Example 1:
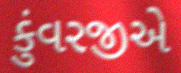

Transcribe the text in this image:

કુંવરજીએ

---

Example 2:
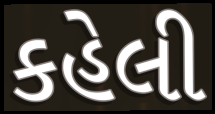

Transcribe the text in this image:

કહેલી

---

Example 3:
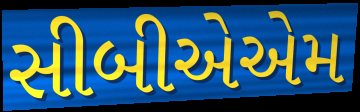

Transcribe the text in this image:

સીબીએએમ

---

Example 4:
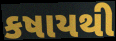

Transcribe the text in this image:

કષાયથી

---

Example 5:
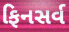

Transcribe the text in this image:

ફિનસર્વ